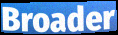
Broader